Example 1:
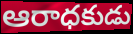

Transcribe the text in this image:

ఆరాధకుడు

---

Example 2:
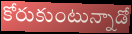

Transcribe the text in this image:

కోరుకుంటున్నాడో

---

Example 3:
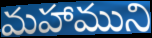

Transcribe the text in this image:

మహాముని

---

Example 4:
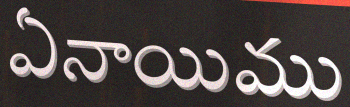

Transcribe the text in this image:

ఏనాయిము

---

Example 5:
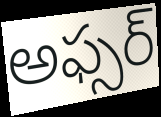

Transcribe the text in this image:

అఫ్సర్